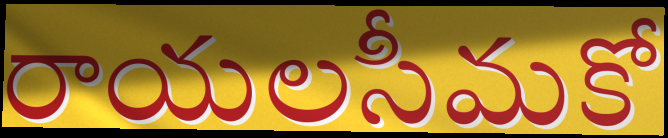
రాయలసీమకో